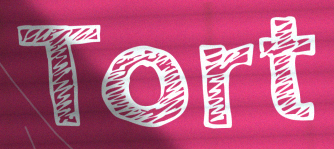
Tort